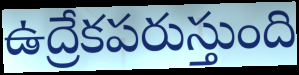
ఉద్రేకపరుస్తుంది